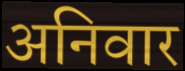
अनिवार